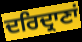
ਦਰਿਦ੍ਰਾਣਾਂ